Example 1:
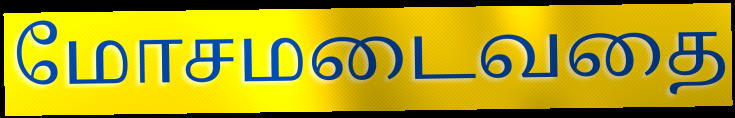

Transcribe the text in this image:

மோசமடைவதை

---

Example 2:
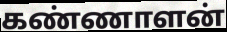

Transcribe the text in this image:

கண்ணாளன்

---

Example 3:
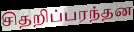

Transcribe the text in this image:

சிதறிப்பரந்தன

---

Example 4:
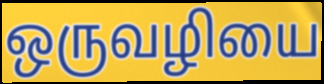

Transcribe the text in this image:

ஒருவழியை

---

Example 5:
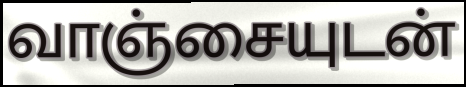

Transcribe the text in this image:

வாஞ்சையுடன்